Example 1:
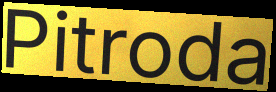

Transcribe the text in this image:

Pitroda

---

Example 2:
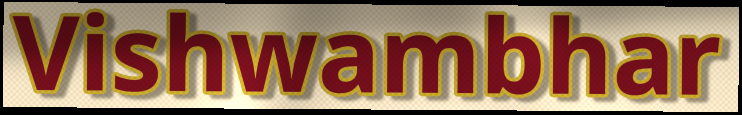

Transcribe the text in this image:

Vishwambhar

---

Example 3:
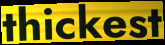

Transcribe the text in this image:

thickest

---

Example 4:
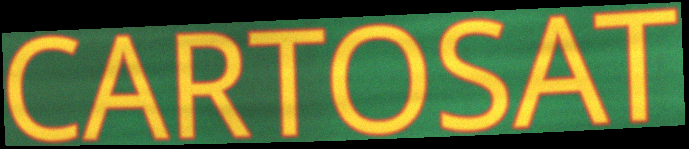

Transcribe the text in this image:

CARTOSAT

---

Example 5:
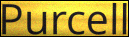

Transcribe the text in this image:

Purcell